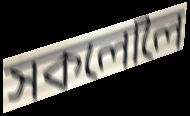
সকলোলৈ